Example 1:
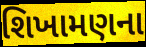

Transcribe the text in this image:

શિખામણના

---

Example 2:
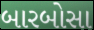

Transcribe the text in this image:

બારબોસા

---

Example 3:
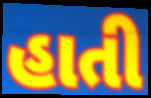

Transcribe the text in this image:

હાતી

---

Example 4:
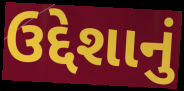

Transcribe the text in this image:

ઉદ્દેશાનું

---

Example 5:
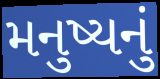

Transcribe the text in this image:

મનુષ્યનું